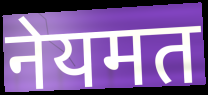
नेयमत